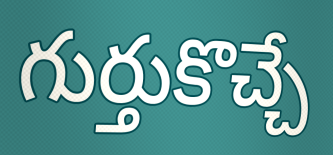
గుర్తుకొచ్చే